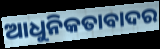
ଆଧୁନିକତାବାଦର